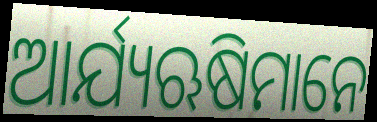
ଆର୍ଯ୍ୟଋଷିମାନେ